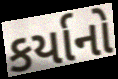
કર્યાનો